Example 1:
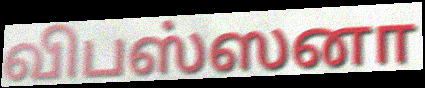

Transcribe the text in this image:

விபஸ்ஸனா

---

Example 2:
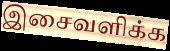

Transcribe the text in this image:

இசைவளிக்க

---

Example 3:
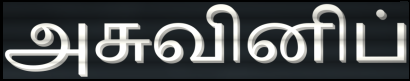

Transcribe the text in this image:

அசுவினிப்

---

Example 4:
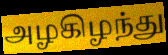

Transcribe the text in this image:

அழகிழந்து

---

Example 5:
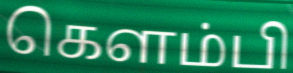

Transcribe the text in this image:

கெளம்பி